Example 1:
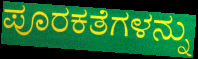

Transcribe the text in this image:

ಪೂರಕತೆಗಳನ್ನು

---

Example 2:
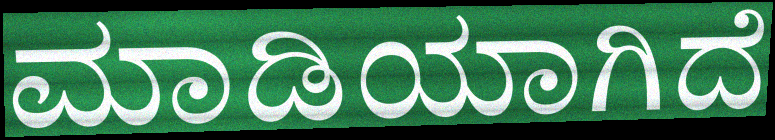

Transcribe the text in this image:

ಮಾಡಿಯಾಗಿದೆ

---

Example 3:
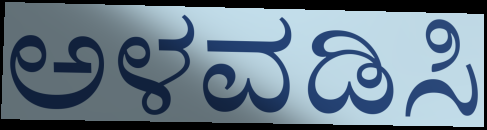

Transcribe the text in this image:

ಅಳವಡಿಸಿ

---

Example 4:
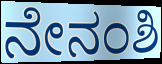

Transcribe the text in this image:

ನೇನಂಶಿ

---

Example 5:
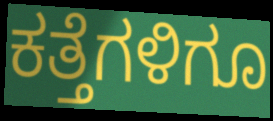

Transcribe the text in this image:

ಕತ್ತೆಗಳಿಗೂ